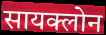
सायक्लोन